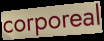
corporeal